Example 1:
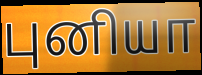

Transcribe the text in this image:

புனியா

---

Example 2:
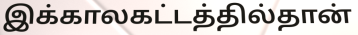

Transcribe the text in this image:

இக்காலகட்டத்தில்தான்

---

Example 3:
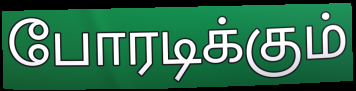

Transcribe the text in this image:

போரடிக்கும்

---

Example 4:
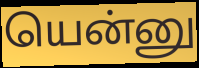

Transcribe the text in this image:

யென்னு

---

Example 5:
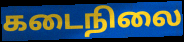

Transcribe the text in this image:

கடைநிலை